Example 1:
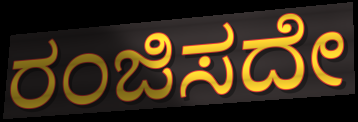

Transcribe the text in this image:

ರಂಜಿಸದೇ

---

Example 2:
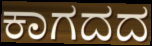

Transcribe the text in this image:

ಕಾಗದದ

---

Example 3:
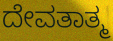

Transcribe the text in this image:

ದೇವತಾತ್ಮ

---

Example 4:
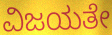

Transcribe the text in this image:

ವಿಜಯತೇ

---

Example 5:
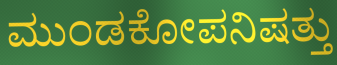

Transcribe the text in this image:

ಮುಂಡಕೋಪನಿಷತ್ತು